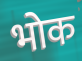
भोक